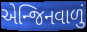
એન્જિનવાળું